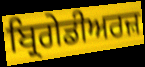
ਬ੍ਰਿਗੇਡੀਅਰਜ਼